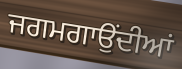
ਜਗਮਗਾਉਂਦੀਆਂ